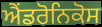
ਐਂਡਰੋਨਿਕੋਸ